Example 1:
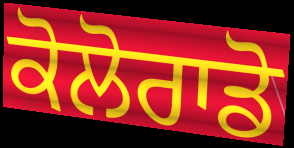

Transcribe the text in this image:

ਕੋਲੋਰਾਡੋ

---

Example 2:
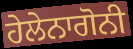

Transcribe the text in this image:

ਹੇਲੇਨਾਗੋਨੀ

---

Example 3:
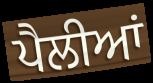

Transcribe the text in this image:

ਪੈਲੀਆਂ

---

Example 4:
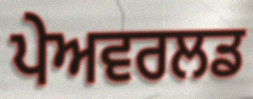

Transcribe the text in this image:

ਪੇਅਵਰਲਡ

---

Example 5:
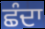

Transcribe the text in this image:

ਛੰਦਾ